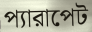
প্যারাপেট